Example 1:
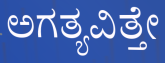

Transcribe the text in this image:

ಅಗತ್ಯವಿತ್ತೇ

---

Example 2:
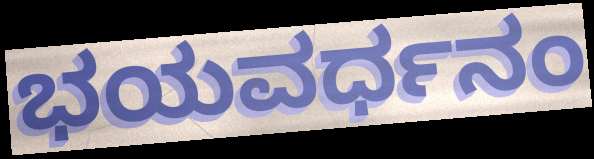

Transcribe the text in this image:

ಭಯವರ್ಧನಂ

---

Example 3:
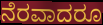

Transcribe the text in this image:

ನೆರವಾದರೂ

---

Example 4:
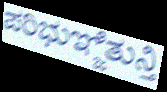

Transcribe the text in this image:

ಪರಿಭುಞ್ಜಿತುನ್ತಿ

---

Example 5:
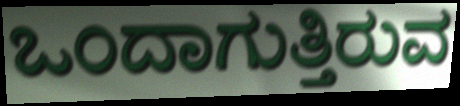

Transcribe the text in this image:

ಒಂದಾಗುತ್ತಿರುವ